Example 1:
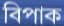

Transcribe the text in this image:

বিপাক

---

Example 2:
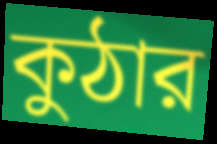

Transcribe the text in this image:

কুঠার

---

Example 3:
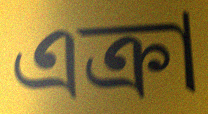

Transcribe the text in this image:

এক্রা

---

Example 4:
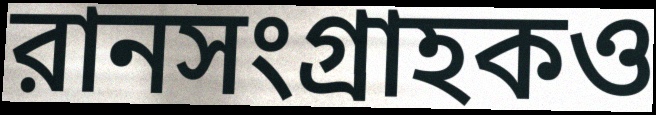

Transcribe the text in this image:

রানসংগ্রাহকও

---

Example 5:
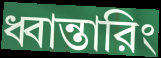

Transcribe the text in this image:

ধ্বান্তারিং